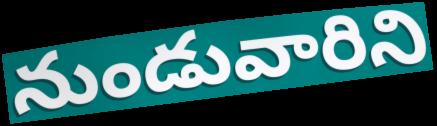
నుండువారిని